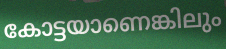
കോട്ടയാണെങ്കിലും